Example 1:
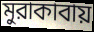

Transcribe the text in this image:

মুরাকাবায়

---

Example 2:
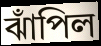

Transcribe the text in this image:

ঝাঁপিল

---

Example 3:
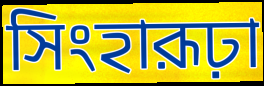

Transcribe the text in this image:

সিংহারূঢ়া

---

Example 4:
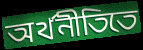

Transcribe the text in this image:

অর্থনীতিতে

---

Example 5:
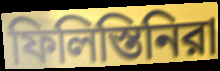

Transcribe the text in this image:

ফিলিস্তিনিরা